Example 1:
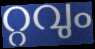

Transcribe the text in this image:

റ്റവും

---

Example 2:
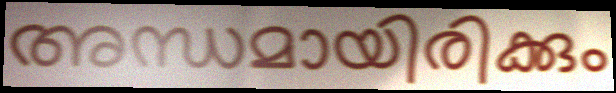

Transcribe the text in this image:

അന്ധമായിരിക്കും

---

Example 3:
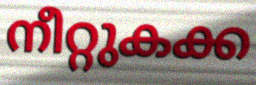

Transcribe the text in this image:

നീറ്റുകക്ക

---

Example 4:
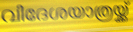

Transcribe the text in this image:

വിദേശയാത്രയ്ക്ക്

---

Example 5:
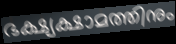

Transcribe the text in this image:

ഭക്ഷ്യക്ഷാമത്തിനും